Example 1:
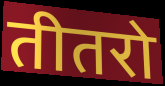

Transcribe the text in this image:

तीतरो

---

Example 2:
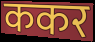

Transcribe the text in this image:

ककर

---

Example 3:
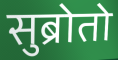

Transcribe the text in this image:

सुब्रोतो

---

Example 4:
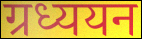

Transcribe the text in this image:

ग्रध्ययन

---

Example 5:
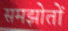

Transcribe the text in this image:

समझोतों